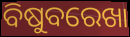
ବିଷୁବରେଖା